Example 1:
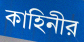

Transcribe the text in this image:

কাহিনীর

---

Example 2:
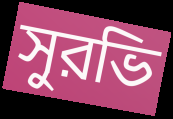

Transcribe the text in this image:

সুরভি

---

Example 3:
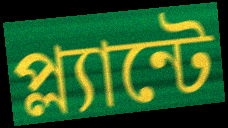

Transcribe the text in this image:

প্ল্যান্টে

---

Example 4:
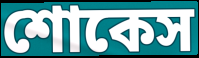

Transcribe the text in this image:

শোকেস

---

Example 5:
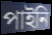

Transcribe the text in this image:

পাইনি